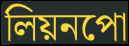
লিয়নপো